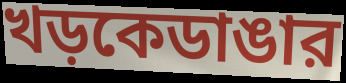
খড়কেডাঙার